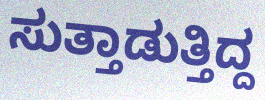
ಸುತ್ತಾಡುತ್ತಿದ್ದ